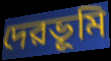
দেৱভূমি